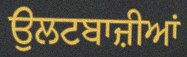
ਉਲਟਬਾਜ਼ੀਆਂ